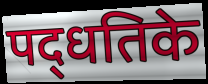
पद्धतिके